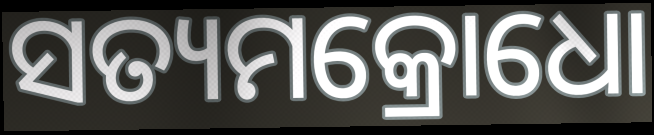
ସତ୍ୟମକ୍ରୋଧୋ